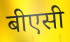
बीएसी